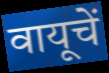
वायूचें